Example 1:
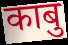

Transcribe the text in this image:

काबु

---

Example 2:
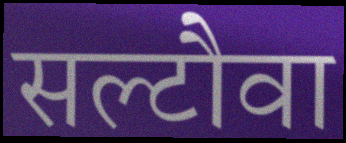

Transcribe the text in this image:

सल्टौवा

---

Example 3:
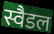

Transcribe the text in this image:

स्वैडल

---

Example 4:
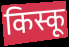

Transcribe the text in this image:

किस्कू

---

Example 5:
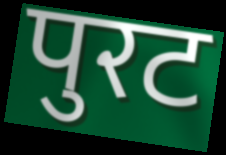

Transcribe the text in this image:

पुरट